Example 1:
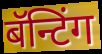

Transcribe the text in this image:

बॅन्टिंग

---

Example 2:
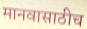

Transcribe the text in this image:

मानवासाठीच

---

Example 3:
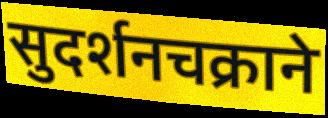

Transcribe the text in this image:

सुदर्शनचक्राने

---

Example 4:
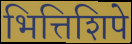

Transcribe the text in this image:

भित्तिशिपे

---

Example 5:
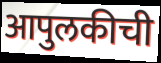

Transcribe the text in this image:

आपुलकीची